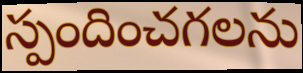
స్పందించగలను